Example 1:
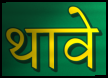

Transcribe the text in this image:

थावे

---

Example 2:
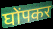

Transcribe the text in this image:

घोंपकर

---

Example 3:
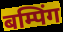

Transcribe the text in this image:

बम्पिंग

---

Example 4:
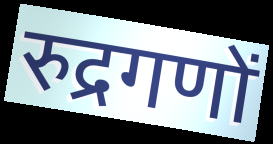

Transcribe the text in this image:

रुद्रगणों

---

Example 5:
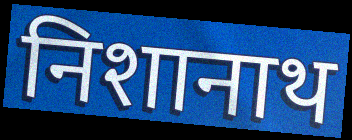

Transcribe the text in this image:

निशानाथ